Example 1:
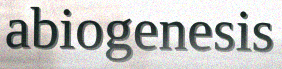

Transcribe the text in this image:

abiogenesis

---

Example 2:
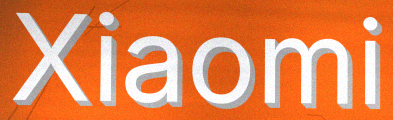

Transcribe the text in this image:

Xiaomi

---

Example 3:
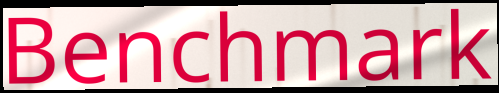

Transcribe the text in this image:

Benchmark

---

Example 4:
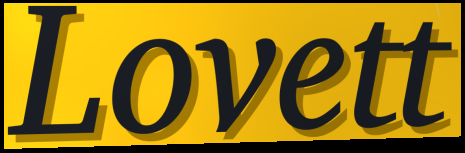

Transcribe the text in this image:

Lovett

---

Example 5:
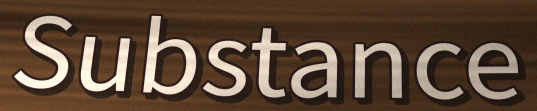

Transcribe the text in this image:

Substance